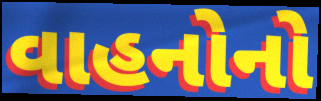
વાહનોનો